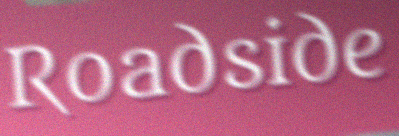
Roadside